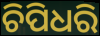
ଚିପିଧରି